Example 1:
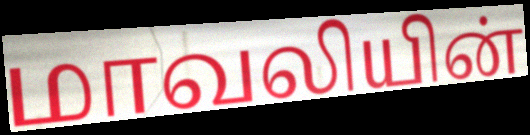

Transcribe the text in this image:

மாவலியின்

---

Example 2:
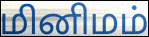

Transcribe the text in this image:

மினிமம்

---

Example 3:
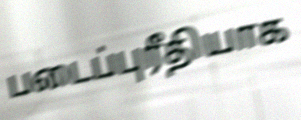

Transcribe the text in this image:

படைப்புரீதியாக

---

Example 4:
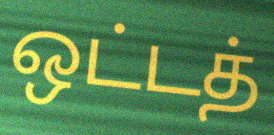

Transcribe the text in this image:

ஒட்டத்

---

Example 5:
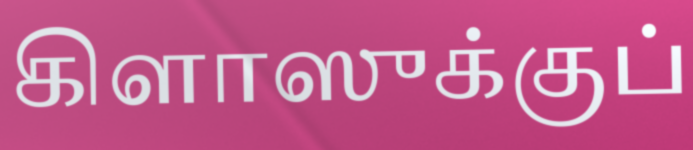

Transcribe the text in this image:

கிளாஸுக்குப்